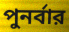
পুনর্বার